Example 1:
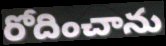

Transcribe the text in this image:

రోదించాను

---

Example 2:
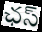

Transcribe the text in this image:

ఛస్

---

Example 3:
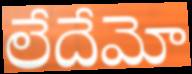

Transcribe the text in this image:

లేదేమో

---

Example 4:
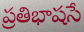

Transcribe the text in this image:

ప్రతిభాషసే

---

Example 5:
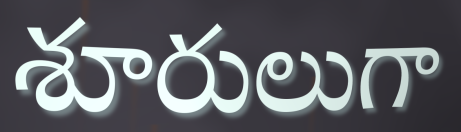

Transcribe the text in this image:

శూరులుగా